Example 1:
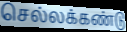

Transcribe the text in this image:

செல்லக்கண்டு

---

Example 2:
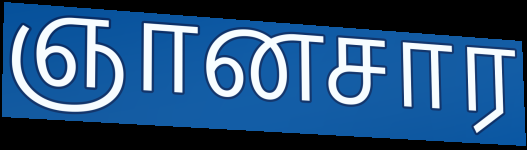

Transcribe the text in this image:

ஞானசார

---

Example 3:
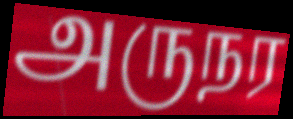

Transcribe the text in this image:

அருநர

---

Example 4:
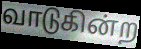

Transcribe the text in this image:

வாடுகின்ற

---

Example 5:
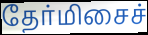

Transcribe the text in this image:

தேர்மிசைச்